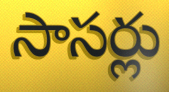
సాసర్లు